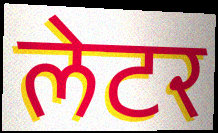
लेटर